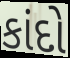
કાંદો